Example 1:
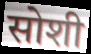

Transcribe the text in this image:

सोशी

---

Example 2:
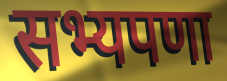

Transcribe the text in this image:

सभ्यपणा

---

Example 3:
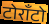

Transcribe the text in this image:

टोरॉंटो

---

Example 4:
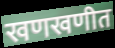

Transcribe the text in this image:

खणखणीत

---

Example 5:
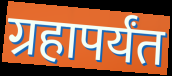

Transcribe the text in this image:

ग्रहापर्यंत